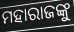
ମହାରାଜଙ୍କୁ